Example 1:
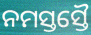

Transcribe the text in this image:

ନମସ୍ତସ୍ତୈ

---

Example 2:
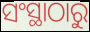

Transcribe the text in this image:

ସଂସ୍ଥାଠାରୁ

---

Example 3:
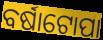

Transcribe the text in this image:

ବର୍ଷାଟୋପା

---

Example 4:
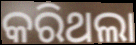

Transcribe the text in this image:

କରିଥଲା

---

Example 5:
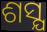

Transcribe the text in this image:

ଶସ୍ଯ